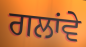
ਗਲਾਂਵੇ